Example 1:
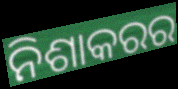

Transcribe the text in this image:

ନିଶାକରର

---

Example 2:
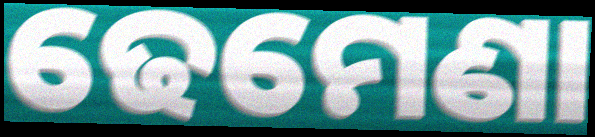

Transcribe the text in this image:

ଢେମେଣା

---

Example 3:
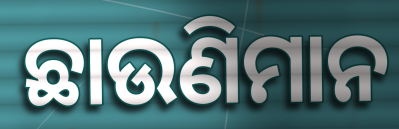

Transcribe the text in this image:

ଛାଉଣିମାନ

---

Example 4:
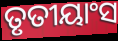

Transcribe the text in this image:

ତୃତୀୟାଂସ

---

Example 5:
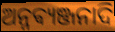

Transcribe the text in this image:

ଅନ୍ନଵ୍ୟଞ୍ଜନାଦି